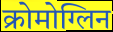
क्रोमोग्लिन